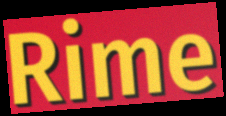
Rime